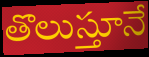
తొలుస్తూనే